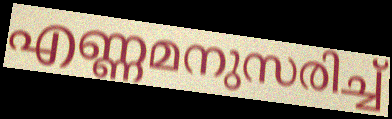
എണ്ണമനുസരിച്ച്